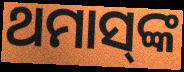
ଥମାସ୍‌ଙ୍କ